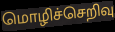
மொழிச்செறிவு